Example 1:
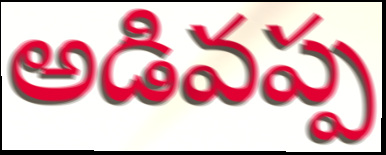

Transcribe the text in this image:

అడివప్ప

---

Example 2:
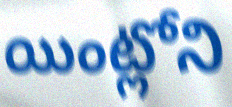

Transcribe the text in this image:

యింట్లోని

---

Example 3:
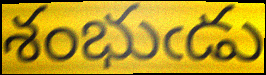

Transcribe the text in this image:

శంభుఁడు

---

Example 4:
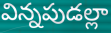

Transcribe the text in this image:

విన్నపుడల్లా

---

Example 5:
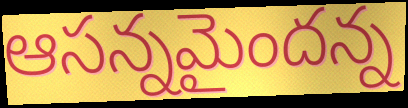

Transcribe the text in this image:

ఆసన్నమైందన్న